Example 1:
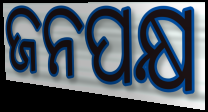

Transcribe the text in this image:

ଜନପକ୍ଷ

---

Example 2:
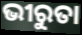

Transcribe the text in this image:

ଭୀରୁତା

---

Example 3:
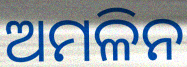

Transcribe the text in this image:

ଅମଳିନ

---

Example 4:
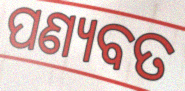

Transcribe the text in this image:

ପଣ୍ୟବତ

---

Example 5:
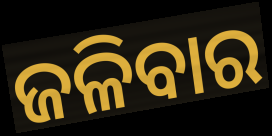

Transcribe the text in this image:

ଜଳିବାର